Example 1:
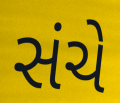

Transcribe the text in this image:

સંચે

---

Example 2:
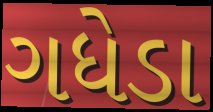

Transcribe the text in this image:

ગધેડા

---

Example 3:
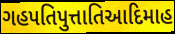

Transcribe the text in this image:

ગહપતિપુત્તાતિઆદિમાહ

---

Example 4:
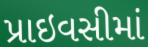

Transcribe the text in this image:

પ્રાઇવસીમાં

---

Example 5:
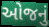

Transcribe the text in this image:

ઓજનું